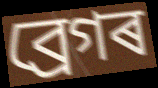
ব্ৰেগৰ